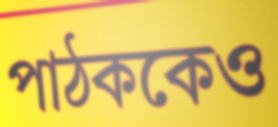
পাঠককেও